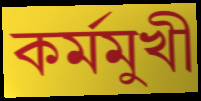
কর্মমুখী